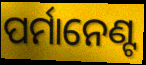
ପର୍ମାନେଣ୍ଟ